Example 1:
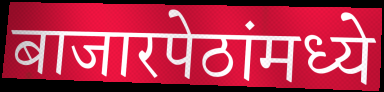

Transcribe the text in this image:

बाजारपेठांमध्ये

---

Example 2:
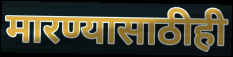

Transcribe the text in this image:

मारण्यासाठीही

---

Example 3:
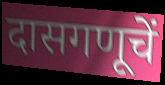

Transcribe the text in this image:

दासगणूचें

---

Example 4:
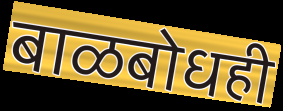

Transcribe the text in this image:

बाळबोधही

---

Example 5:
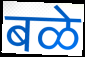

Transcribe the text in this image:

बळे